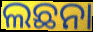
ଲଛନା